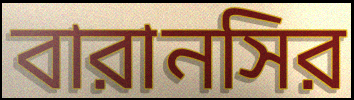
বারানসির